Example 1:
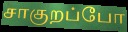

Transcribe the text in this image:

சாகுறப்போ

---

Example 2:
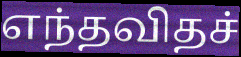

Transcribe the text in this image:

எந்தவிதச்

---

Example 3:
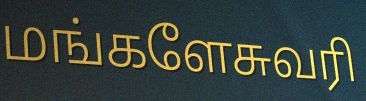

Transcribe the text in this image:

மங்களேசுவரி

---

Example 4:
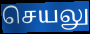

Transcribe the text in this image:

செயலு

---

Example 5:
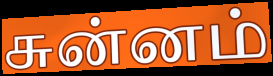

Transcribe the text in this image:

சுன்னம்